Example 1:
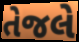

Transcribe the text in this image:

તેજલે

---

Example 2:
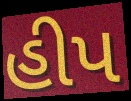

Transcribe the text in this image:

હીપ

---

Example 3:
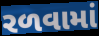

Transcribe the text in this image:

રળવામાં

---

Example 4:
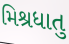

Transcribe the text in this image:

મિશ્રધાતુ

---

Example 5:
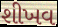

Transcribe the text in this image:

શીખવ